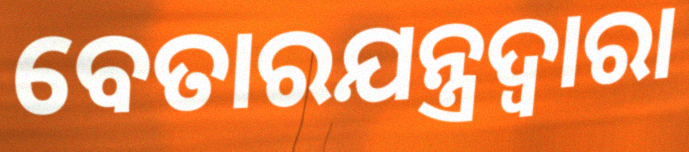
ବେତାରଯନ୍ତ୍ରଦ୍ୱାରା